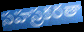
సహస్రకరతా